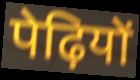
पेढ़ियों